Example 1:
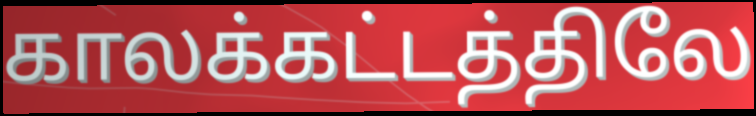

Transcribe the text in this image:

காலக்கட்டத்திலே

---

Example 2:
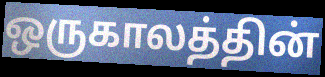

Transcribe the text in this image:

ஒருகாலத்தின்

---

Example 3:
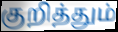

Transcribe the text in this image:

குறித்தும்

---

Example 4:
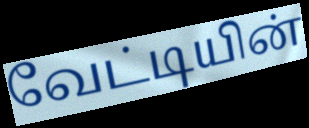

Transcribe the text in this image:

வேட்டியின்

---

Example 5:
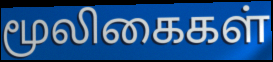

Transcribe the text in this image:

மூலிகைகள்